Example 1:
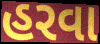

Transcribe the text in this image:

હરવા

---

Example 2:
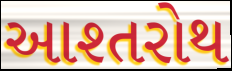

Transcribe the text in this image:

આશ્તરોથ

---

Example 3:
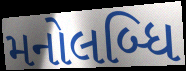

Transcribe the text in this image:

મનોલબ્ધિ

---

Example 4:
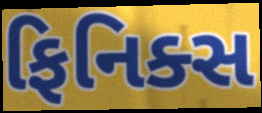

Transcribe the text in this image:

ફિનિક્સ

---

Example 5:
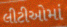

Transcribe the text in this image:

લીટીઓમાં